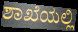
ಶಾಖೆಯಲ್ಲಿ